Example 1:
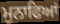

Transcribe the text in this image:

ਮੁਨਾਫਿਆਂ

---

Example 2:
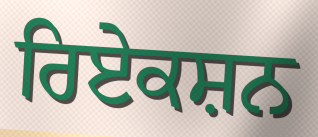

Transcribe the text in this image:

ਰਿਏਕਸ਼ਨ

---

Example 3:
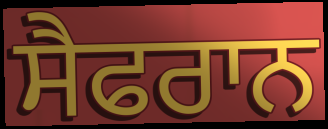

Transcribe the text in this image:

ਸੈਫਰਾਨ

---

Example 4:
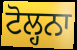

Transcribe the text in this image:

ਟੋਲ੍ਹਨਾ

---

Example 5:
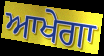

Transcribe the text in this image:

ਆਖੇਗਾ